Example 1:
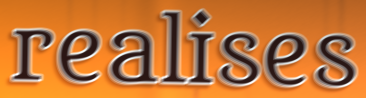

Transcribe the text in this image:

realises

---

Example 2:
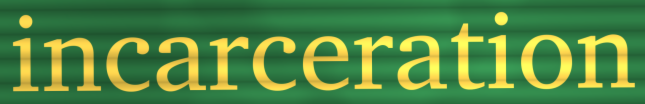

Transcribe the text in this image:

incarceration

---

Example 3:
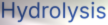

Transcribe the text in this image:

Hydrolysis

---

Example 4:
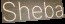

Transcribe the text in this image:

Sheba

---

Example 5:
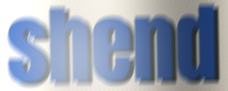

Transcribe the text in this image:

shend